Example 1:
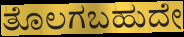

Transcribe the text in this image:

ತೊಲಗಬಹುದೇ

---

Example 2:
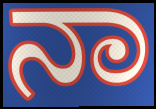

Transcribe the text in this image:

ನಾ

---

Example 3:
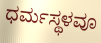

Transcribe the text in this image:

ಧರ್ಮಸ್ಥಳವೂ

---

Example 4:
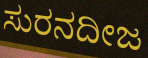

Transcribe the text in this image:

ಸುರನದೀಜ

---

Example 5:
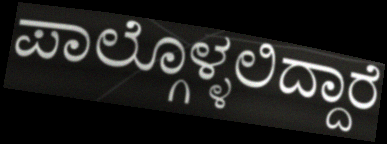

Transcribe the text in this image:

ಪಾಲ್ಗೊಳ್ಳಲಿದ್ದಾರೆ